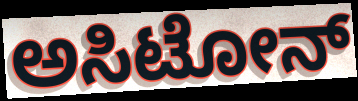
ಅಸಿಟೋನ್